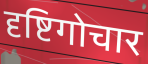
दृष्टिगोचार